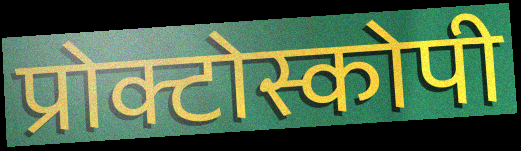
प्रोक्टोस्कोपी